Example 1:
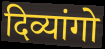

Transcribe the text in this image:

दिव्यांगो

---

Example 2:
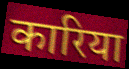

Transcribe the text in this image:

कारिया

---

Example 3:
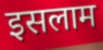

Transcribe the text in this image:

इसलाम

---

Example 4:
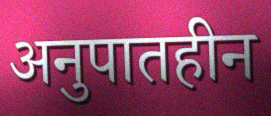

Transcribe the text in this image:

अनुपातहीन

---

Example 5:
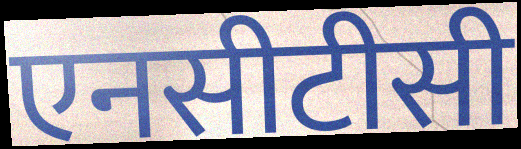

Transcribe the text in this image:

एनसीटीसी